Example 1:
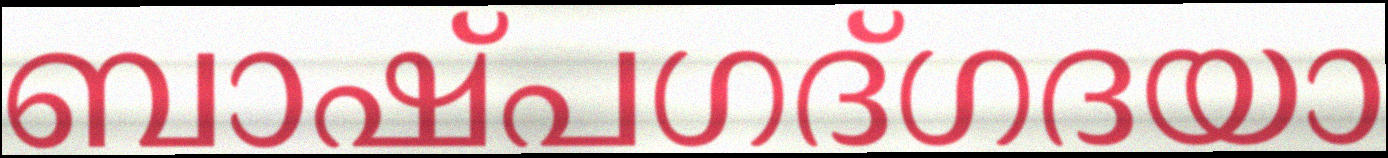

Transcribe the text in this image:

ബാഷ്പഗദ്ഗദയാ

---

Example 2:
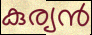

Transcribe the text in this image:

കുര്യൻ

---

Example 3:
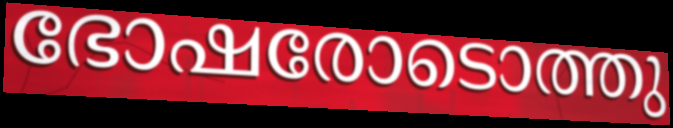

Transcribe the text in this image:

ഭോഷരോടൊത്തു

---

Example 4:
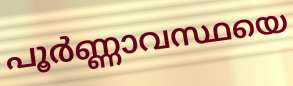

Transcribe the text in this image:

പൂർണ്ണാവസ്ഥയെ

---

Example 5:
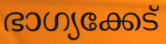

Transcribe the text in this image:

ഭാഗ്യക്കേട്